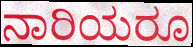
ನಾರಿಯರೂ